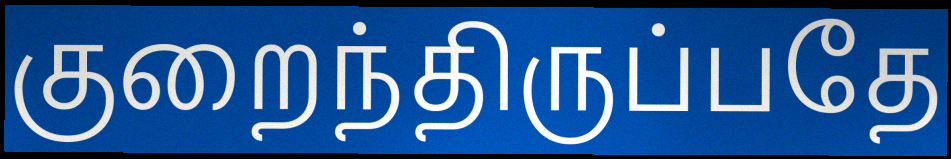
குறைந்திருப்பதே